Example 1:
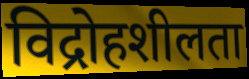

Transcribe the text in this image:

विद्रोहशीलता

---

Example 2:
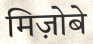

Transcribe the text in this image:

मिज़ोबे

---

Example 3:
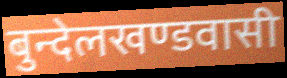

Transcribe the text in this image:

बुन्देलखण्डवासी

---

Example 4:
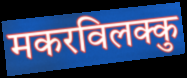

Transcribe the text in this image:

मकरविलक्कु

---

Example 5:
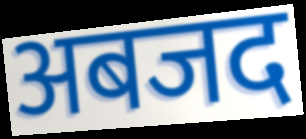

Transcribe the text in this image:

अबजद